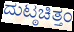
ದುಟ್ಠಚಿತ್ತಂ